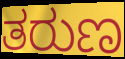
ತರುಣ